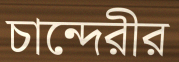
চান্দেরীর